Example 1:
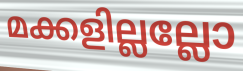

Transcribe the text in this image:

മക്കളില്ലല്ലോ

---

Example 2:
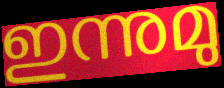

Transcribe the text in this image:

ഇന്നുമു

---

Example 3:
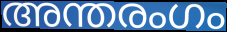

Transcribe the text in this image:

അന്തരംഗം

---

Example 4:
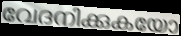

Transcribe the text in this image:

വേദനിക്കുകയോ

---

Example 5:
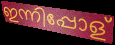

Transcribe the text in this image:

ഇന്നിപ്പോള്